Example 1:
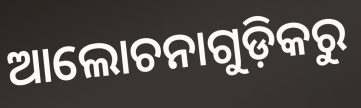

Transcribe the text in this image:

ଆଲୋଚନାଗୁଡ଼ିକରୁ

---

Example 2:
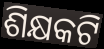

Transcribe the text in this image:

ଶିକ୍ଷକଟି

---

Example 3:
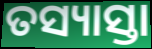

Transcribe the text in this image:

ତସ୍ୟାସ୍ତା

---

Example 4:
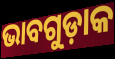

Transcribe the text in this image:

ଭାବଗୁଡ଼ାକ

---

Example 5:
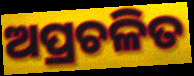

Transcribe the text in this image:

ଅପ୍ରଚଳିତ